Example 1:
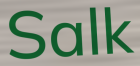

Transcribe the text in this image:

Salk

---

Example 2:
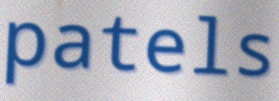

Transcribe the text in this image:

patels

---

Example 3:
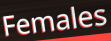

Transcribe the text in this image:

Females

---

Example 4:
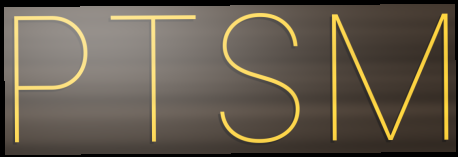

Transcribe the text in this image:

PTSM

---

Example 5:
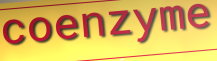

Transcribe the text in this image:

coenzyme